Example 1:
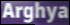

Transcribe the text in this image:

Arghya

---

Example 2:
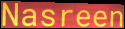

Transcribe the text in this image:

Nasreen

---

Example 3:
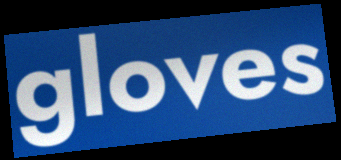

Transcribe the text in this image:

gloves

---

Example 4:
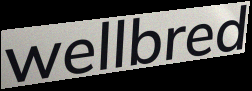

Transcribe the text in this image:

wellbred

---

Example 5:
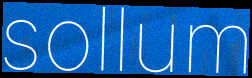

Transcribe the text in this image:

sollum